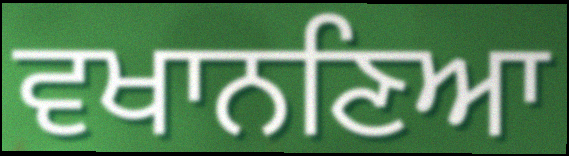
ਵਖਾਨਣਿਆ